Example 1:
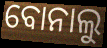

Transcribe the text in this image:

ବୋନାଲୁ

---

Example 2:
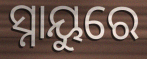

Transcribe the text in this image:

ସ୍ନାୟୁରେ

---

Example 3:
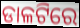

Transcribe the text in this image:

ଡାଳଟିରେ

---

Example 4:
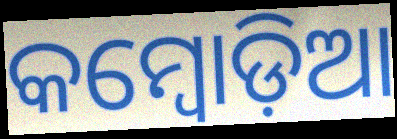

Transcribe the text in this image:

କମ୍ୱୋଡ଼ିଆ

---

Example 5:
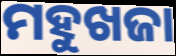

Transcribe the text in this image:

ମହୁଖଜା